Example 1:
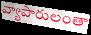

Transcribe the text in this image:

వ్యాపారులంతా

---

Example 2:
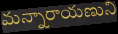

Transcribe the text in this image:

మన్నారాయణుని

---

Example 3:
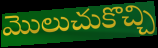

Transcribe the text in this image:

మొలుచుకొచ్చి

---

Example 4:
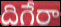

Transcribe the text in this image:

దిగేరా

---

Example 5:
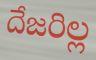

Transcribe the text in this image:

దేజరిల్ల